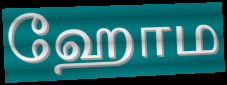
ஹோம